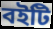
বইটি